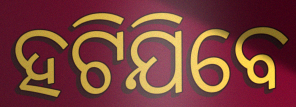
ହଟିଯିବେ